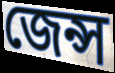
জেন্স